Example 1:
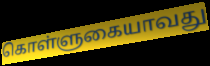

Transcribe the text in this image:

கொள்ளுகையாவது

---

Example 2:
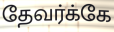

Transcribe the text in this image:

தேவர்க்கே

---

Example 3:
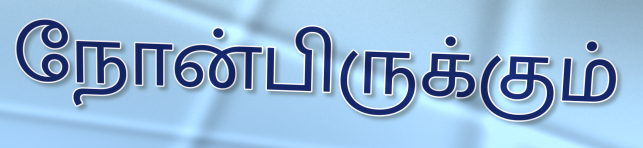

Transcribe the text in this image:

நோன்பிருக்கும்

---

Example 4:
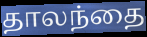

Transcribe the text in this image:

தாலந்தை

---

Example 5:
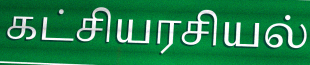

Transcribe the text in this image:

கட்சியரசியல்